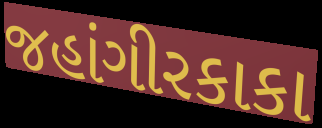
જહાંગીરકાકા